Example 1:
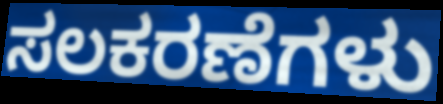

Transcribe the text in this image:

ಸಲಕರಣೆಗಳು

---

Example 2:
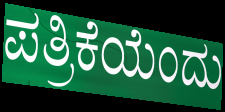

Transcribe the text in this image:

ಪತ್ರಿಕೆಯೆಂದು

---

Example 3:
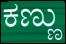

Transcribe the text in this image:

ಕಣ್ಣು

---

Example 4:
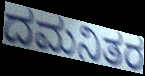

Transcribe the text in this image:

ದಮನಿತರ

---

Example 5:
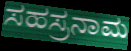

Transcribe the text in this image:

ಸಹಸ್ರನಾಮ